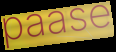
paase